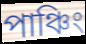
পাঞ্চিং